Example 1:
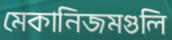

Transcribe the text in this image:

মেকানিজমগুলি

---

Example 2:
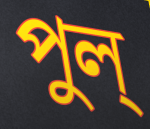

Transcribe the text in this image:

পুল্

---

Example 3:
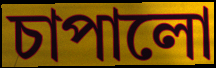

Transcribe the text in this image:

চাপালো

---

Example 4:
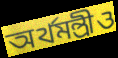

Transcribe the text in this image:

অর্থমন্ত্রীও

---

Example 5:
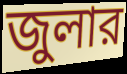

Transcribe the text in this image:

জুলার